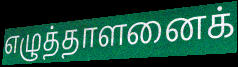
எழுத்தாளனைக்